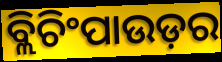
ବ୍ଲିଚିଂପାଉଡ଼ର